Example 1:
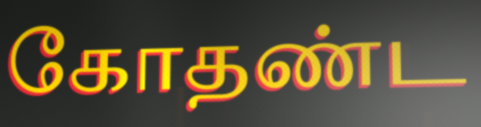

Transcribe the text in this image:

கோதண்ட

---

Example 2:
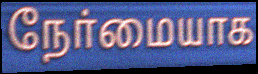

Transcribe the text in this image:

நேர்மையாக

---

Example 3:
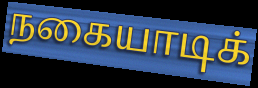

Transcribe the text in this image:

நகையாடிக்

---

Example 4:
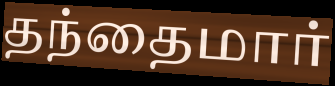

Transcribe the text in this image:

தந்தைமார்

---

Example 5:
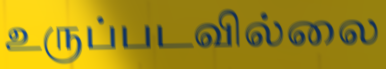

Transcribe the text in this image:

உருப்படவில்லை